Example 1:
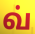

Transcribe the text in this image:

வ்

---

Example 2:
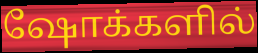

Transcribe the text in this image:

ஷோக்களில்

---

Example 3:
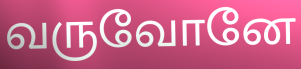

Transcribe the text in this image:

வருவோனே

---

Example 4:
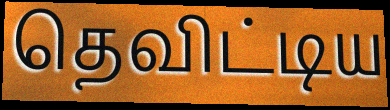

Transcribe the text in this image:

தெவிட்டிய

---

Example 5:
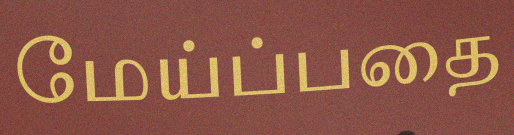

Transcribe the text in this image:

மேய்ப்பதை